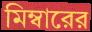
মিম্বারের